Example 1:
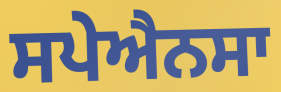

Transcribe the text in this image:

ਸਪੇਐਨਸਾ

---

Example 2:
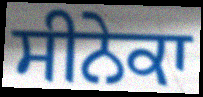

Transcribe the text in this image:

ਸੀਨੇਕਾ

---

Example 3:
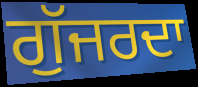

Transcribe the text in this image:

ਗੁੱਜਰਦਾ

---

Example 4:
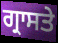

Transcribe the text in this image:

ਗ੍ਰਾਸਤੇ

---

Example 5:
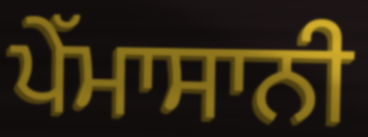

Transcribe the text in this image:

ਪੇੱਮਾਸਾਨੀ